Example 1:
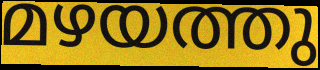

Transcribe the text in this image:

മഴയത്തു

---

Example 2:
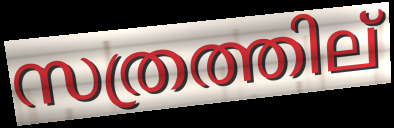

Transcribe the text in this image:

സത്രത്തില്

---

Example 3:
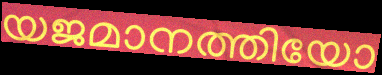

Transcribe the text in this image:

യജമാനത്തിയോ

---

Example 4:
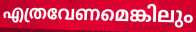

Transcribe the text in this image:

എത്രവേണമെങ്കിലും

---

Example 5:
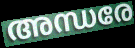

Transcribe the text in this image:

അന്ധരേ